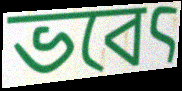
ভবেৎ